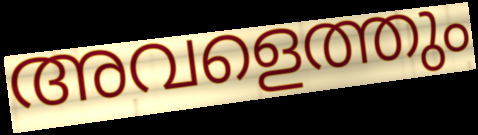
അവളെത്തും